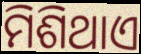
ମିଶିଥାଏ